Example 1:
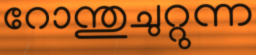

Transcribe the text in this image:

റോന്തുചുറ്റുന്ന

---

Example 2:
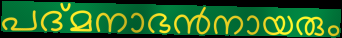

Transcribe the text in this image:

പദ്മനാഭൻനായരും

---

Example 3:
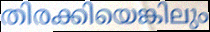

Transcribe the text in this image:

തിരക്കിയെങ്കിലും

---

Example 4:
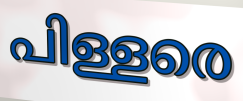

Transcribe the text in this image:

പിള്ളരെ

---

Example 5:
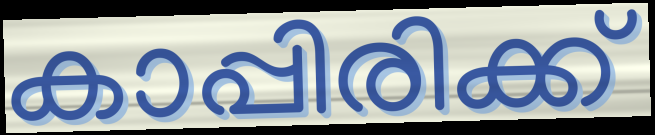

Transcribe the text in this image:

കാപ്പിരിക്ക്